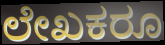
ಲೇಖಕರೂ